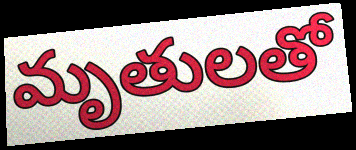
మృతులతో